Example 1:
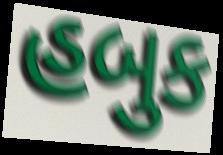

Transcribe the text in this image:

હબુક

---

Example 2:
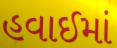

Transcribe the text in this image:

હવાઈમાં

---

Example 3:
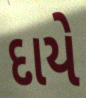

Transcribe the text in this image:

દાયે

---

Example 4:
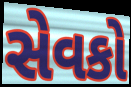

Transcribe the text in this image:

સેવકો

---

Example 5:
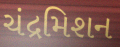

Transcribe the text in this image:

ચંદ્રમિશન